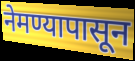
नेमण्यापासून